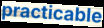
practicable